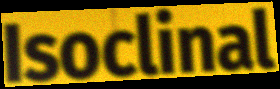
Isoclinal